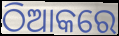
ଠିଆକରେ